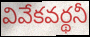
వివేకవర్థనీ